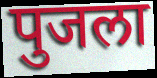
पुजला